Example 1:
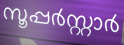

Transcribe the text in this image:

സൂപ്പർസ്റ്റാർ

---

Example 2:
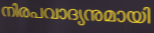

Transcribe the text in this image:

നിരപവാദ്യനുമായി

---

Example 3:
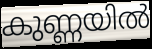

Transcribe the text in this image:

കുണ്ണയിൽ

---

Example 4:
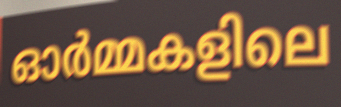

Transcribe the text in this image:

ഓർമ്മകളിലെ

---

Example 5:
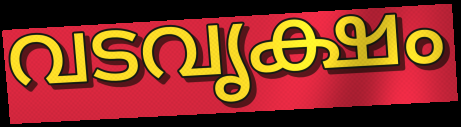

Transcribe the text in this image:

വടവൃക്ഷം